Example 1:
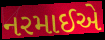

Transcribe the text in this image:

નરમાઈએ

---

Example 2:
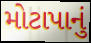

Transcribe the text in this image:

મોટાપાનું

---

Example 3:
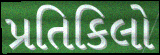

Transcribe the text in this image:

પ્રતિકિલો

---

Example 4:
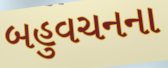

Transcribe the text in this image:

બહુવચનના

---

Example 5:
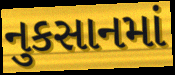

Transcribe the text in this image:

નુકસાનમાં